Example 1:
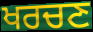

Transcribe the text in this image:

ਖਰਚਣ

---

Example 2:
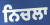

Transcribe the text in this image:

ਨਿਚਲਾ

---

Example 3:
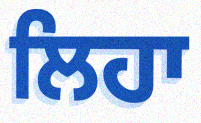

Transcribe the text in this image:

ਲਿਹਾ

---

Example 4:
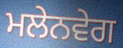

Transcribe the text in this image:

ਮਲੇਨਵੇਗ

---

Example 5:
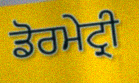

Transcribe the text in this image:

ਡੋਰਮੇਟ੍ਰੀ